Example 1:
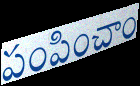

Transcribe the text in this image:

పంపించాం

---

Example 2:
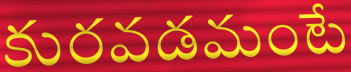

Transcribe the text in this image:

కురవడమంటే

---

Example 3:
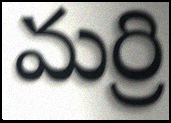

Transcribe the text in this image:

మర్రి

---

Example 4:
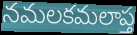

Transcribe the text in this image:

నమలకమలాప్త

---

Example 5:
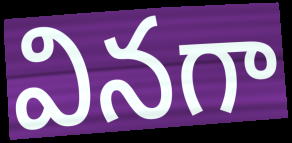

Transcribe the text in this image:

వినగా